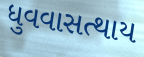
ધુવવાસત્થાય